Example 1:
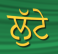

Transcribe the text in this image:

ਲੁੱਟੇ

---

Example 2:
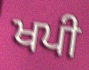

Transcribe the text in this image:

ਖਪੀ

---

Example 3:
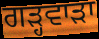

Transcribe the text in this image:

ਗੜ੍ਹਵਾੜਾ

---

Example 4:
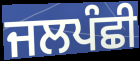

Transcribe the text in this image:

ਜਲਪੰਛੀ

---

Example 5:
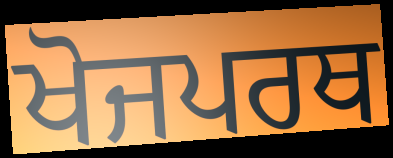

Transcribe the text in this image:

ਖੋਜਪਰਥ